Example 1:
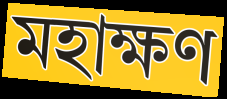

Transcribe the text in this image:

মহাক্ষণ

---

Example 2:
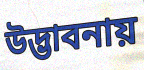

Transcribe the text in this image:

উদ্ভাবনায়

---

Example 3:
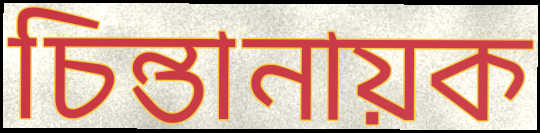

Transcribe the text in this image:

চিন্তানায়ক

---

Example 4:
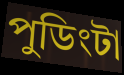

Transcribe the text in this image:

পুডিংটা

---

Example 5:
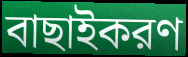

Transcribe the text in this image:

বাছাইকরণ